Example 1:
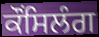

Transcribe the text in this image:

ਕੌਂਸਿਲੰਗ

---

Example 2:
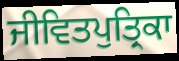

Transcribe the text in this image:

ਜੀਵਿਤਪੁਤ੍ਰਿਕਾ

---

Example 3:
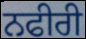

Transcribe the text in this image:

ਨਫੀਰੀ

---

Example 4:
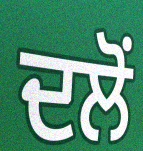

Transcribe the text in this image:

ਦਲੋਂ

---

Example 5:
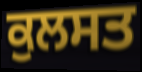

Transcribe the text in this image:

ਕੁਲਸਤ